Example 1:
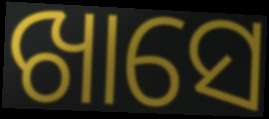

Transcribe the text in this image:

ଖାସେ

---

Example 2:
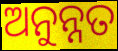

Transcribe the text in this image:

ଅନୁନ୍ନତ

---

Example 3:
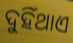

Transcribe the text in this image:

ଦୁହିଁଥାଏ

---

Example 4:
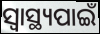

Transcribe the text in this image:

ସ୍ବାସ୍ଥ୍ୟପାଇଁ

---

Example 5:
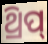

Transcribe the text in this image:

ଥ୍ରିପ୍